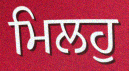
ਮਿਲਹੁ